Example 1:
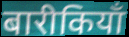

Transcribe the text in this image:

बारीकियाँ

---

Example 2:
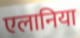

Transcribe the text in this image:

एलानिया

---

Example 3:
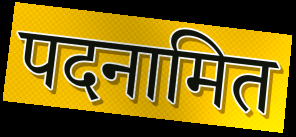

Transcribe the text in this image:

पदनामित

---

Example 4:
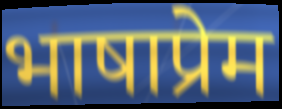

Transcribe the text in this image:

भाषाप्रेम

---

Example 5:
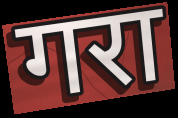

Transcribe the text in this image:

गरा